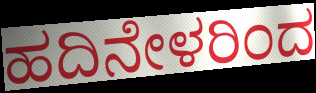
ಹದಿನೇಳರಿಂದ